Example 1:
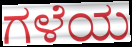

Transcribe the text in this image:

ಗಳೆಯ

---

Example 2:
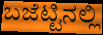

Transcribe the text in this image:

ಬಜೆಟ್ಟಿನಲ್ಲಿ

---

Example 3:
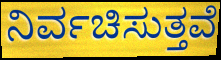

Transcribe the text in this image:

ನಿರ್ವಚಿಸುತ್ತವೆ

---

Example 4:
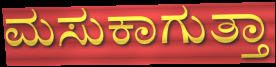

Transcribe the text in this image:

ಮಸುಕಾಗುತ್ತಾ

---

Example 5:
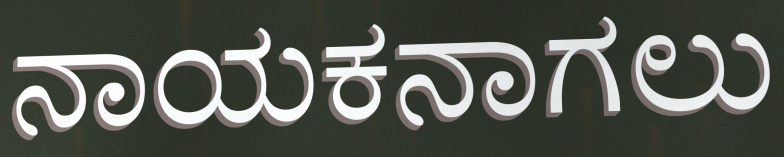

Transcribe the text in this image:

ನಾಯಕನಾಗಲು